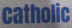
catholic